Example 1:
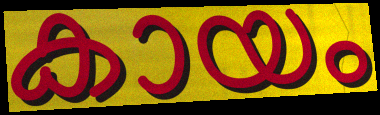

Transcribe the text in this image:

കായം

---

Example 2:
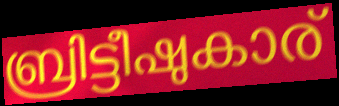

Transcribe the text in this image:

ബ്രിട്ടീഷുകാര്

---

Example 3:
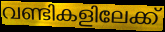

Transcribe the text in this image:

വണ്ടികളിലേക്ക്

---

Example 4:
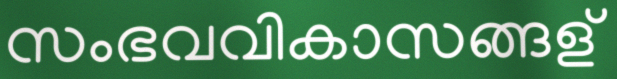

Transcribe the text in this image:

സംഭവവികാസങ്ങള്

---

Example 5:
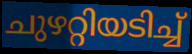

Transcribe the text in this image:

ചുഴറ്റിയടിച്ച്